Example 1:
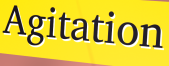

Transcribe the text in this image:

Agitation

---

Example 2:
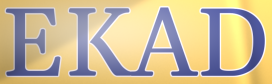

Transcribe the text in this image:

EKAD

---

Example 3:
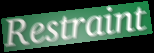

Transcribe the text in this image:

Restraint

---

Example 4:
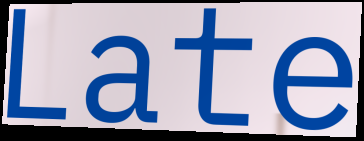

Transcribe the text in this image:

Late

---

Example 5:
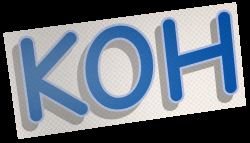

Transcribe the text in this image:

KOH